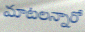
మాటలన్నారో